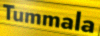
Tummala